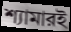
শ্যামারই